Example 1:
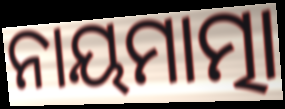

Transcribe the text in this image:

ନାୟମାତ୍ମା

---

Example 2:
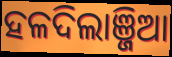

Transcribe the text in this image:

ହଳଦିଲାଞ୍ଜିଆ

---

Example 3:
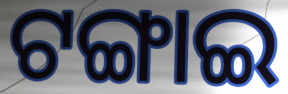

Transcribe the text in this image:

ଟଙ୍ଗାଇ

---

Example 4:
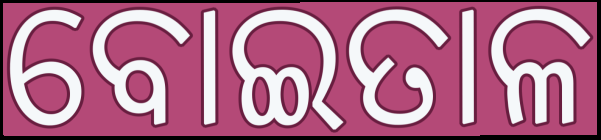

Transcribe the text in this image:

ବୋଇତାଳ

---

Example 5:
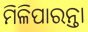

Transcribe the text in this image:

ମିଳିପାରନ୍ତା